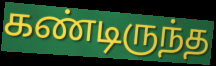
கண்டிருந்த